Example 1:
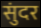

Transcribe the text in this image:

सुंदर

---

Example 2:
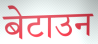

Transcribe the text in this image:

बेटाउन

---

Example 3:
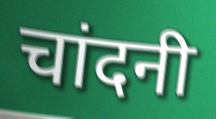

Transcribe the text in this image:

चांदनी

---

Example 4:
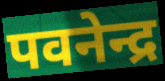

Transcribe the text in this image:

पवनेन्द्र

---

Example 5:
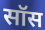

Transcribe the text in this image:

सॉस